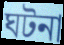
ঘটনা